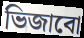
ভিজাবো